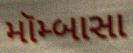
મૉમ્બાસા